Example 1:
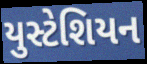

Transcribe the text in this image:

યુસ્ટેશિયન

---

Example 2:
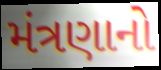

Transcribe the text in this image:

મંત્રણાનો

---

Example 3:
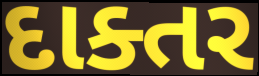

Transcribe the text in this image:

દાક્તર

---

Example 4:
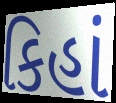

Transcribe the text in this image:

કિહાં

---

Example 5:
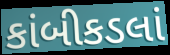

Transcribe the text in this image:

કાંબીકડલાં